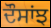
ਦੌਸਾਂਝ